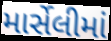
માર્સેલીમાં